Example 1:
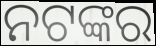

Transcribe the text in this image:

ନଟଙ୍କର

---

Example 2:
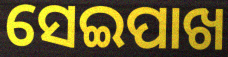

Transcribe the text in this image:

ସେଇପାଖ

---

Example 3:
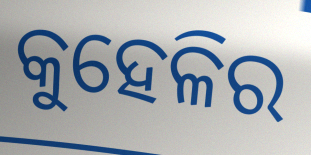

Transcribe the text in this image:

କୁହେଳିର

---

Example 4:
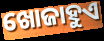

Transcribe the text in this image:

ଖୋଜାହୁଏ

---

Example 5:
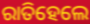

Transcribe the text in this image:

ରାତିହେଲେ